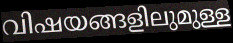
വിഷയങ്ങളിലുമുള്ള